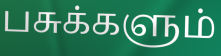
பசுக்களும்